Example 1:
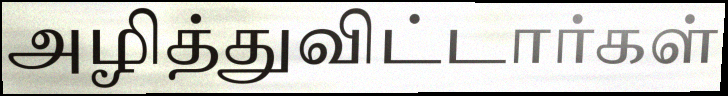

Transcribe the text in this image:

அழித்துவிட்டார்கள்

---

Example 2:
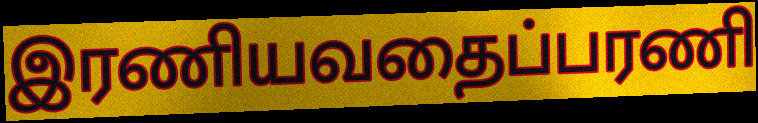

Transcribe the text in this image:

இரணியவதைப்பரணி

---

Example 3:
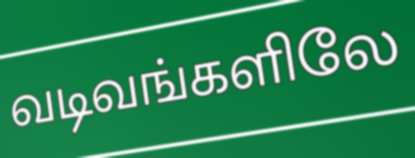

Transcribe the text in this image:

வடிவங்களிலே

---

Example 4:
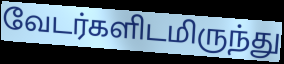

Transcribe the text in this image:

வேடர்களிடமிருந்து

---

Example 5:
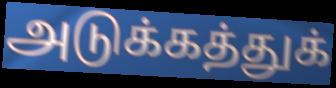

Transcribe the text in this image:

அடுக்கத்துக்